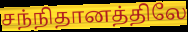
சந்நிதானத்திலே